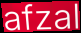
afzal